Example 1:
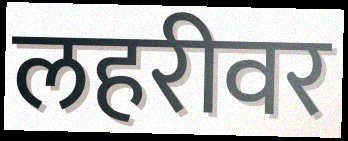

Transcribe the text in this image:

लहरीवर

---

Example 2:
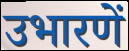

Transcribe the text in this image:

उभारणें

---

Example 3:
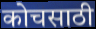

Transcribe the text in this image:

कोचसाठी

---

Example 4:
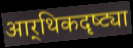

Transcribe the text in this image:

आर्थिकदृष्ट्या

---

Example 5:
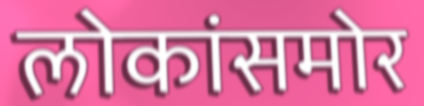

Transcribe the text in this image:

लोकांसमोर